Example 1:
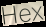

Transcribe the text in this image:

Hex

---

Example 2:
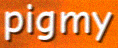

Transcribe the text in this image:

pigmy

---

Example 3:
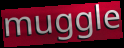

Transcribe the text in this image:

muggle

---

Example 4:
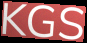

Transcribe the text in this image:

KGS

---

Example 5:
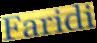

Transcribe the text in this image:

Faridi